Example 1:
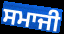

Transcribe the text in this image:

ਸਮਾਜੀ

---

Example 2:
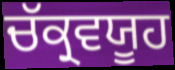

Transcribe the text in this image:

ਚੱਕ੍ਰਵਯੂਹ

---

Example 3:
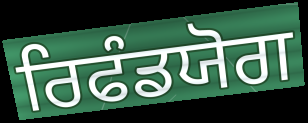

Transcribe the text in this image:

ਰਿਫੰਡਯੋਗ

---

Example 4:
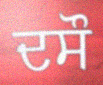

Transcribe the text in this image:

ਦਸੌ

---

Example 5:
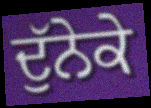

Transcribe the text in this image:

ਦੁੱਨੇਕੇ